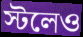
স্টলেও